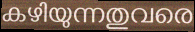
കഴിയുന്നതുവരെ